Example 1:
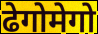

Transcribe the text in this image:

ढेगोमेगो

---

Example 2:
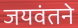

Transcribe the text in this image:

जयवंतने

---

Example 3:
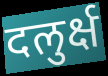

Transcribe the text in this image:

दलुर्क्ष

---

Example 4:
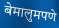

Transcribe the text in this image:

बेमालुमपणे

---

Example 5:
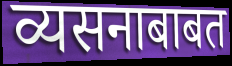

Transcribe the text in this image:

व्यसनाबाबत